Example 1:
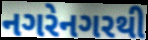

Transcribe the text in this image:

નગરેનગરથી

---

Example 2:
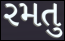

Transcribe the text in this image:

રમતુ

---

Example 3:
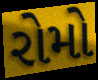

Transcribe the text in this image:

રોમો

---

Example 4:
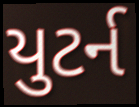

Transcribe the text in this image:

યુટર્ન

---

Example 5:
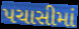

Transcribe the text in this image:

પચાસીમાં